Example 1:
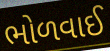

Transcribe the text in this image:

ભોળવાઈ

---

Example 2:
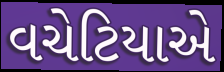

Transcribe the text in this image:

વચેટિયાએ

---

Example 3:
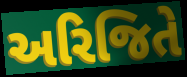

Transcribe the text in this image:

અરિજિતે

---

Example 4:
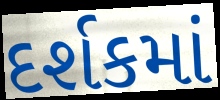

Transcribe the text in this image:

દર્શકમાં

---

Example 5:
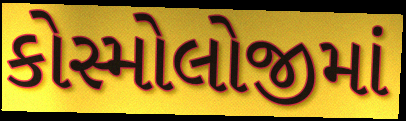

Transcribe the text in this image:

કોસ્મોલોજીમાં